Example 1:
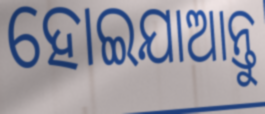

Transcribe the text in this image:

ହୋଇଯାଆନ୍ତୁ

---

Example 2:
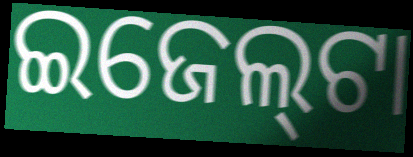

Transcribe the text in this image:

ଇଜେଲ୍‍ଟା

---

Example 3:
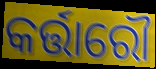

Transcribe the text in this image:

କର୍ତ୍ତାରୌ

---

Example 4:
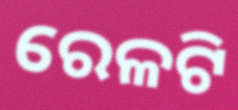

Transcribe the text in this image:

ରେଳଟି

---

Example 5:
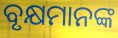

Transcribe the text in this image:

ବୃକ୍ଷମାନଙ୍କ